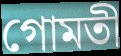
গোমতী